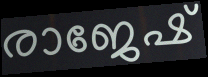
രാജേഷ്